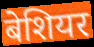
बेशियर